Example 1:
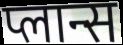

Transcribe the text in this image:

प्‍लान्‍स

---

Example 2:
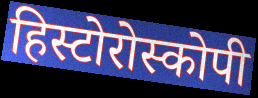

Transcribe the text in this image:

हिस्टोरोस्कोपी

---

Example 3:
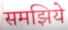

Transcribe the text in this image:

समझिये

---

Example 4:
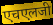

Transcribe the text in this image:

एचएलजी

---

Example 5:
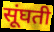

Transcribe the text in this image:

सूंघती